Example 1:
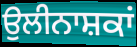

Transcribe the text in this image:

ਉਲੀਨਾਸ਼ਕਾਂ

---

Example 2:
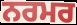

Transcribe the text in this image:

ਨਰਮਰ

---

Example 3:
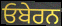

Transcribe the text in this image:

ਓਬੇਰਨ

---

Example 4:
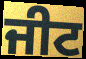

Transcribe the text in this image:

ਜੀਟ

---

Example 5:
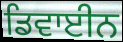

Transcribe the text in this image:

ਡਿਵਾਈਨ